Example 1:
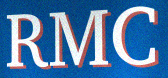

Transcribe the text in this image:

RMC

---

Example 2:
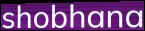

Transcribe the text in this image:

shobhana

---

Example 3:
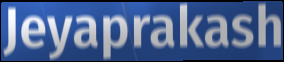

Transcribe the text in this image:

Jeyaprakash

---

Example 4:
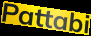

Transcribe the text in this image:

Pattabi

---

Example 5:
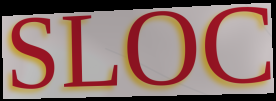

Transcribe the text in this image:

SLOC